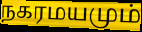
நகரமயமும்